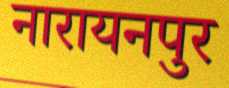
नारायनपुर